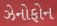
ઝેનોફોન